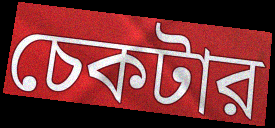
চেকটার